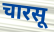
चारसू